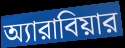
অ্যারাবিয়ার